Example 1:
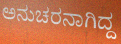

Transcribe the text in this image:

ಅನುಚರನಾಗಿದ್ದ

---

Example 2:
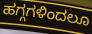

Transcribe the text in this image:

ಹಗ್ಗಗಳಿಂದಲೂ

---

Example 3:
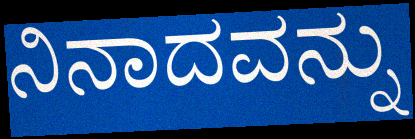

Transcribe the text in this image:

ನಿನಾದವನ್ನು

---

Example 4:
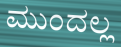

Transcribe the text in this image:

ಮುಂದಲ್ಲ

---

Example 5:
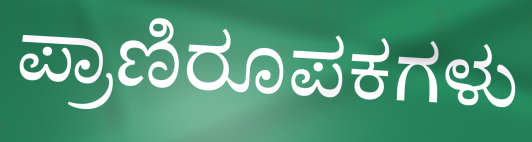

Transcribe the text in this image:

ಪ್ರಾಣಿರೂಪಕಗಳು